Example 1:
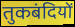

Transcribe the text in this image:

तुकबंदियों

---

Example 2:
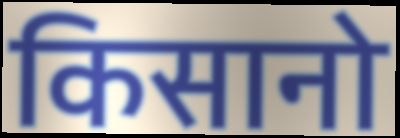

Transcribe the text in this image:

किसानो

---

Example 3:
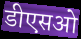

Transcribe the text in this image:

डीएसओ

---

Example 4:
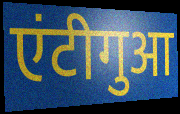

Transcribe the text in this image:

एंटीगुआ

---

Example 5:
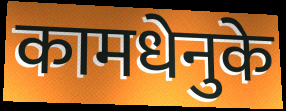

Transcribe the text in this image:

कामधेनुके